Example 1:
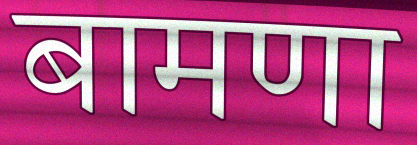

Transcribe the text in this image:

बामणा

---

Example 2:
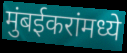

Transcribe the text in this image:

मुंबईकरांमध्ये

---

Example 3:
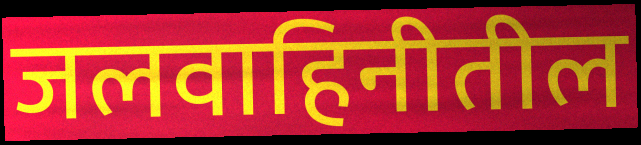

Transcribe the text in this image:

जलवाहिनीतील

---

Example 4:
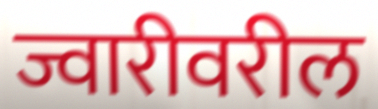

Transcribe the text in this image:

ज्वारीवरील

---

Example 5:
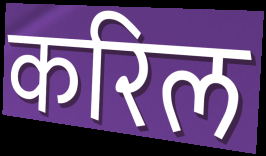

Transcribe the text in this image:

करिल